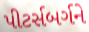
પીટર્સબર્ગને